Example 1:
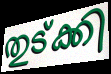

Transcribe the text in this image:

തുട്ക്കി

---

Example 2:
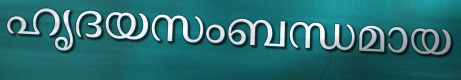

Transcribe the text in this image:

ഹൃദയസംബന്ധമായ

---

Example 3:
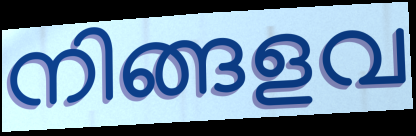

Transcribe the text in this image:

നിങ്ങളവ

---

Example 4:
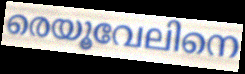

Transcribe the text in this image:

രെയൂവേലിനെ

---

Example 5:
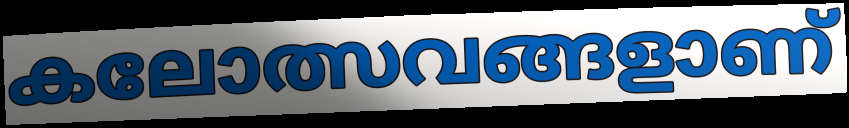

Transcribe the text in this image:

കലോത്സവങ്ങളാണ്